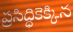
ప్రసిద్ధికెక్కిన